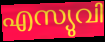
എസ്യുവി